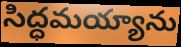
సిద్ధమయ్యాను